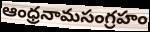
ఆంధ్రనామసంగ్రహం